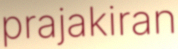
prajakiran